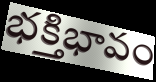
భక్తిభావం